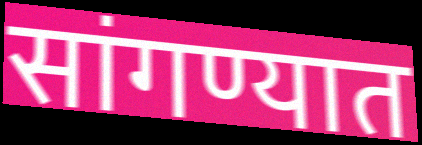
सांगण्यात